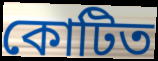
কোটিত